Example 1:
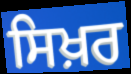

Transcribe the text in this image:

ਸਿਖ਼ਰ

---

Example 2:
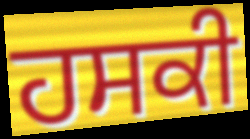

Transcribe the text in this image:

ਹਸਕੀ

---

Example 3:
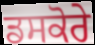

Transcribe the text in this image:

ਡਸਕੋਰੇ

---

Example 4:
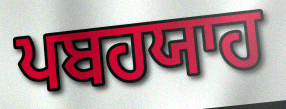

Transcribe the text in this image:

ਪਬਹਯਾਹ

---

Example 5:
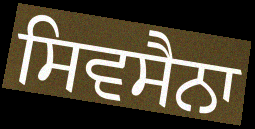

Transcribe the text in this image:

ਸਿਵਸੈਨਾ